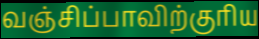
வஞ்சிப்பாவிற்குரிய